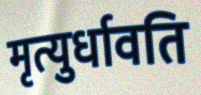
मृत्युर्धावति